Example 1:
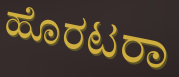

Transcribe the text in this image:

ಹೊರಟರಾ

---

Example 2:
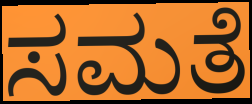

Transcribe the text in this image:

ಸಮತೆ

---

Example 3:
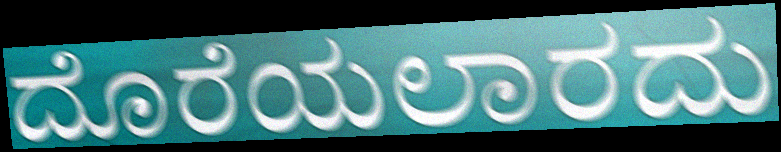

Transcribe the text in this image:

ದೊರೆಯಲಾರದು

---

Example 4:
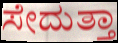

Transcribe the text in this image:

ಸೇದುತ್ತಾ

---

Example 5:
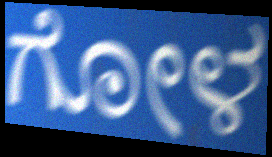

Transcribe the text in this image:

ಗೋಳ